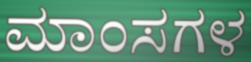
ಮಾಂಸಗಳ